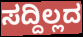
ಸದ್ದಿಲ್ಲದ